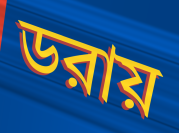
ডরায়